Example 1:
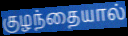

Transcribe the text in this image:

குழந்தையால்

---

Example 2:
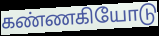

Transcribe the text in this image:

கண்ணகியோடு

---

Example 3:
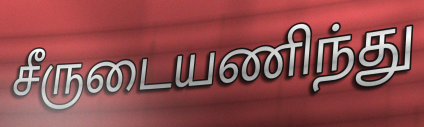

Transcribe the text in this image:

சீருடையணிந்து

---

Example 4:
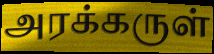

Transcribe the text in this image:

அரக்கருள்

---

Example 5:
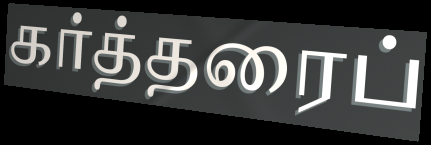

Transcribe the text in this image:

கர்த்தரைப்